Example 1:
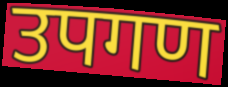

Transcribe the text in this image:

उपगण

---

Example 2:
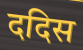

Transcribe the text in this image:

ददिस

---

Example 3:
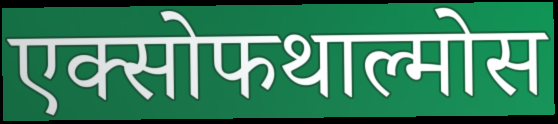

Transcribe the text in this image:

एक्सोफथाल्मोस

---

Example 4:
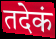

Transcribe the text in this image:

तदेकं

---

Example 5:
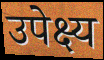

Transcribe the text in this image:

उपेक्ष्य